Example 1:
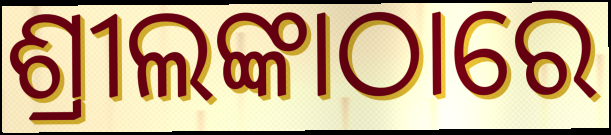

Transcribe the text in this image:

ଶ୍ରୀଲଙ୍କାଠାରେ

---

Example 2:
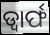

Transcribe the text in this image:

ଡ୍ୱାର୍ଫ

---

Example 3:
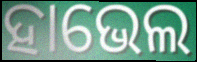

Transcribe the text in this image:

ହାଭେଲ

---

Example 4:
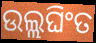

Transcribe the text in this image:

ଉଲ୍ଲଘିଂତ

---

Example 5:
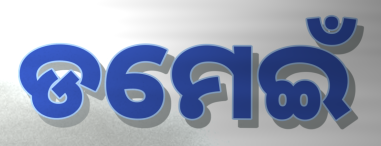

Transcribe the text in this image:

ଡମେଇଁ